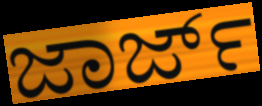
ಜಾರ್ಜ್